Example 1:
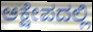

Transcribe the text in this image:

ಆಕ್ಷೇಪದಲ್ಲಿ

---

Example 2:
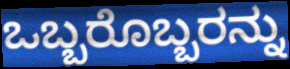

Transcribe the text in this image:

ಒಬ್ಬರೊಬ್ಬರನ್ನು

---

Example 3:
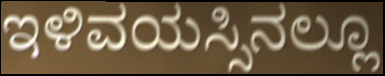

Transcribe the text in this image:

ಇಳಿವಯಸ್ಸಿನಲ್ಲೂ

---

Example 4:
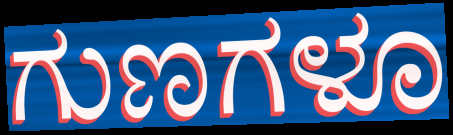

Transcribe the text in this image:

ಗುಣಗಳೂ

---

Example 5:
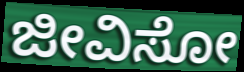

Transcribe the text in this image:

ಜೀವಿಸೋ